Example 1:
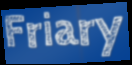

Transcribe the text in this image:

Friary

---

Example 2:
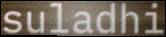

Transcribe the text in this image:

suladhi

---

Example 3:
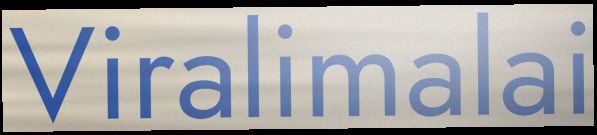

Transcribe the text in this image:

Viralimalai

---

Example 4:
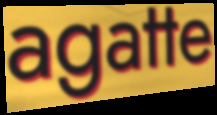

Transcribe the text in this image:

agatte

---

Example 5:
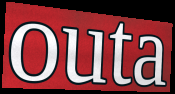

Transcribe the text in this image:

outa